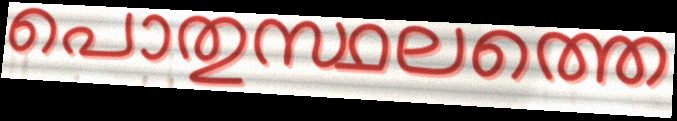
പൊതുസ്ഥലത്തെ